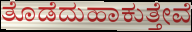
ತೊಡೆದುಹಾಕುತ್ತೇವೆ